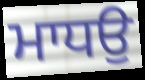
ਮਾਧਉ